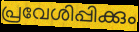
പ്രവേശിപ്പിക്കും